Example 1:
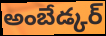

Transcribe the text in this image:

అంబేడ్కర్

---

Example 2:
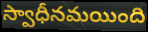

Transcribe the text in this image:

స్వాధీనమయింది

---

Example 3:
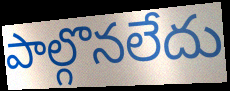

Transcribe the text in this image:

పాల్గొనలేదు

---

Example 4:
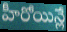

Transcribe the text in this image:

హీరోయిన్లే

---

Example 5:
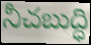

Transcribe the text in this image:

నీచబుద్ధి